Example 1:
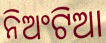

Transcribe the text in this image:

ନିଅଂଟିଆ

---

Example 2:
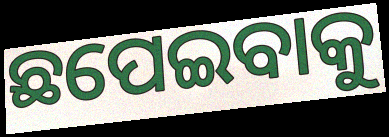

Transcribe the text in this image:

ଛପେଇବାକୁ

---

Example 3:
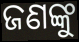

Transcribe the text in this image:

ଜଣଙ୍କୁ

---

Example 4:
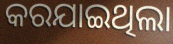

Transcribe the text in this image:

କରଯାଇଥିଲା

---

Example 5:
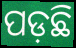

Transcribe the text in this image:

ପଡ଼ଛି